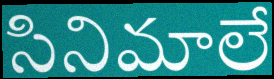
సినిమాలే